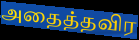
அதைத்தவிர